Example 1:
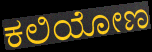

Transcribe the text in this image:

ಕಲಿಯೋಣ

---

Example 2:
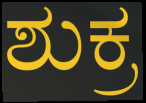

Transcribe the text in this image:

ಶುಕ್ರ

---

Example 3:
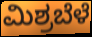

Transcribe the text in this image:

ಮಿಶ್ರಬೆಳೆ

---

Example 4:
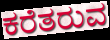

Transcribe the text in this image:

ಕರೆತರುವ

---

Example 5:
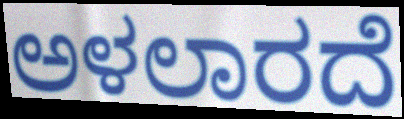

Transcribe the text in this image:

ಅಳಲಾರದೆ